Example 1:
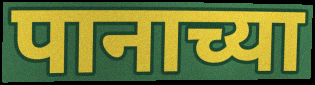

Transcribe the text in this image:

पानाच्या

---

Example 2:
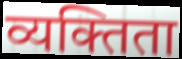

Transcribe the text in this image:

व्यक्तिता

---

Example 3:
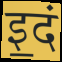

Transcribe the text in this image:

इ॒दं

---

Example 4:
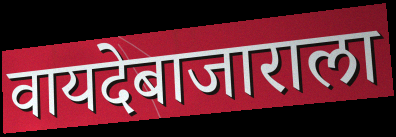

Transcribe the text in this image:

वायदेबाजाराला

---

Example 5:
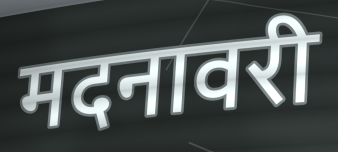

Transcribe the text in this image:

मदनावरी